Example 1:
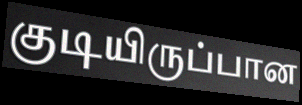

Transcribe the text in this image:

குடியிருப்பான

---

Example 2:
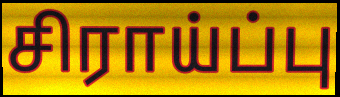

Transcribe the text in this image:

சிராய்ப்பு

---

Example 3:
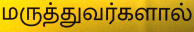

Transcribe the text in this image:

மருத்துவர்களால்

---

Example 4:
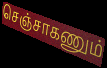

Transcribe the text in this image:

செஞ்சாகணும்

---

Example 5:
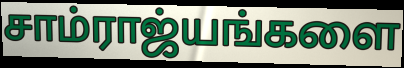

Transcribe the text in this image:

சாம்ராஜ்யங்களை